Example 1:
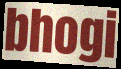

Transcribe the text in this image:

bhogi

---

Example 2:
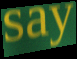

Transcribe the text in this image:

say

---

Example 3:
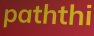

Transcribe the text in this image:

paththi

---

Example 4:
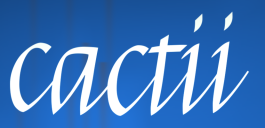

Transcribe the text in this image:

cactii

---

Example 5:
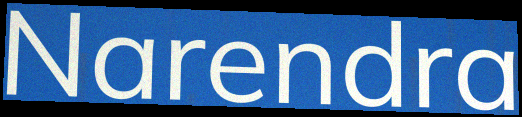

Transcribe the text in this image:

Narendra